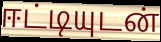
ஈட்டியுடன்